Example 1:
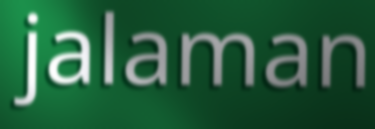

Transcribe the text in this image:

jalaman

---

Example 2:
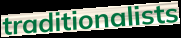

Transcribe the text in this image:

traditionalists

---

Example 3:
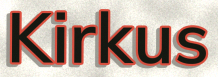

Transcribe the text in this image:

Kirkus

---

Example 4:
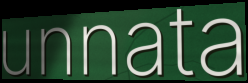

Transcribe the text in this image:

unnata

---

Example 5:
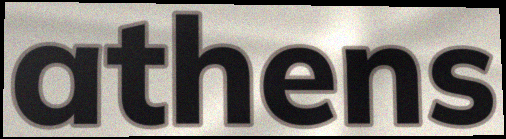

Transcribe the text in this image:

athens